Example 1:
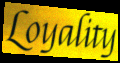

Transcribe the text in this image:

Loyality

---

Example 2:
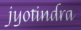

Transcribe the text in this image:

jyotindra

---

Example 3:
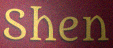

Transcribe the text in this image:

Shen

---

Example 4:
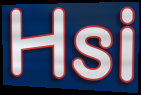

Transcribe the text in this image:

Hsi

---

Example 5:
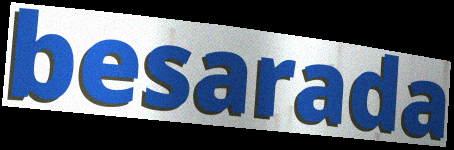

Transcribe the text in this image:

besarada